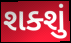
શક્શું